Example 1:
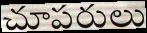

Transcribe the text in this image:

చూపరులు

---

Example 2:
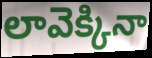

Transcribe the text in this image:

లావెక్కినా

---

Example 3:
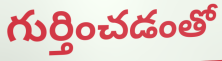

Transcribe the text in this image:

గుర్తించడంతో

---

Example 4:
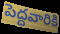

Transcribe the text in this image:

పెద్దవారికి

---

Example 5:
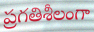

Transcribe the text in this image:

ప్రగతిశీలంగా